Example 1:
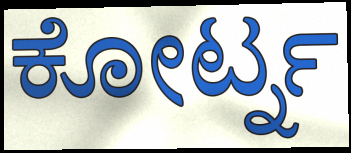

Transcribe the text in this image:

ಕೋರ್ಟ್ನ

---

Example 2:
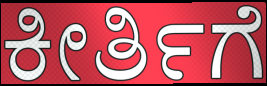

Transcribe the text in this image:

ಕೀರ್ತಿಗೆ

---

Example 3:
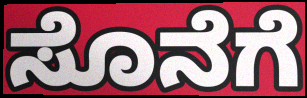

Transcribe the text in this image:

ಸೊನೆಗೆ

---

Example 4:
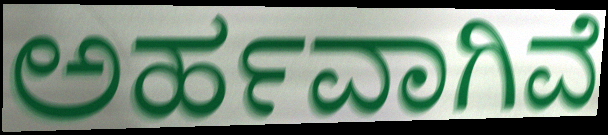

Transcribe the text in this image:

ಅರ್ಹವಾಗಿವೆ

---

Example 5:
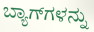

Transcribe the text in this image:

ಬ್ಯಾಗ್‍ಗಳನ್ನು